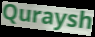
Quraysh